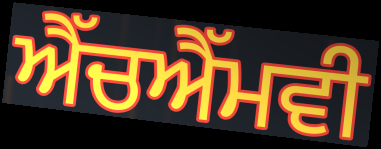
ਐੱਚਐੱਮਵੀ